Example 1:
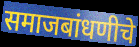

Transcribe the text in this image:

समाजबांधणीचे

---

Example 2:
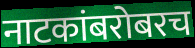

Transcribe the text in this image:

नाटकांबरोबरच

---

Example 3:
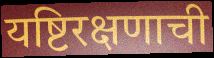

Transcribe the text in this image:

यष्टिरक्षणाची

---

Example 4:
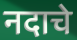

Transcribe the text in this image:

नदाचे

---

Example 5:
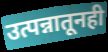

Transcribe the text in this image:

उत्पन्नातूनही